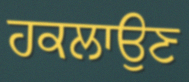
ਹਕਲਾਉਣ